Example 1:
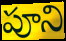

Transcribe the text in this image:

పూని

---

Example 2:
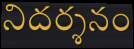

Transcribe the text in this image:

నిదర్శనం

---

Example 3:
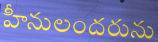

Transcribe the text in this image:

హీనులందరును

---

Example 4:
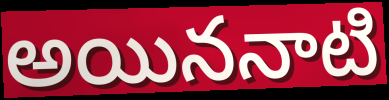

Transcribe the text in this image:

అయిననాటి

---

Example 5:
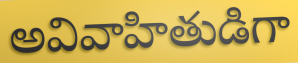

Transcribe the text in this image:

అవివాహితుడిగా